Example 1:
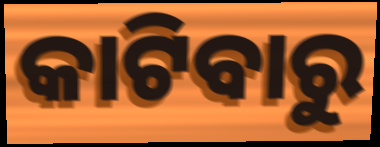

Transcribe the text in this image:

କାଟିବାରୁ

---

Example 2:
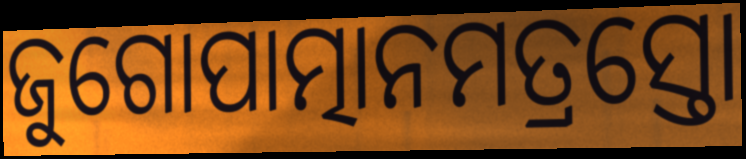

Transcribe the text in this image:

ଜୁଗୋପାତ୍ମାନମତ୍ରସ୍ତୋ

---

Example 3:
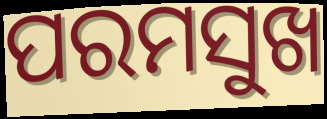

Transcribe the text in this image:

ପରମସୁଖ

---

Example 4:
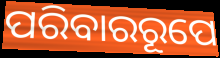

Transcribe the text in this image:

ପରିବାରରୂପେ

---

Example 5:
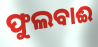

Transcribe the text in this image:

ଫୁଲବାଈ